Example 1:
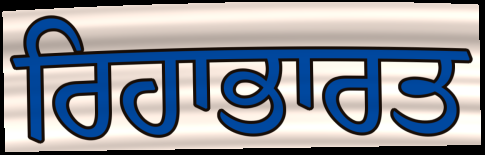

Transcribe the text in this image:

ਰਿਹਾਭਾਰਤ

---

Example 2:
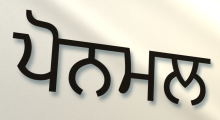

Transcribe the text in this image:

ਪੋਨਮਲ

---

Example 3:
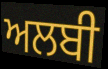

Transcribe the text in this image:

ਅਲਬੀ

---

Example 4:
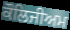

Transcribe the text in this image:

ਕੌਲਿਜੀਅਮ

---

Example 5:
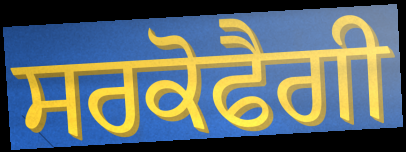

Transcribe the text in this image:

ਸਰਕੋਫੈਗੀ